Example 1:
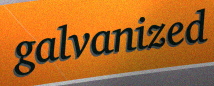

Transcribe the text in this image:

galvanized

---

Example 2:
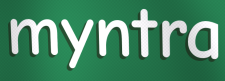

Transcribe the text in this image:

myntra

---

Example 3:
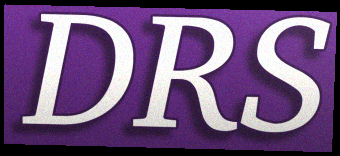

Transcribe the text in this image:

DRS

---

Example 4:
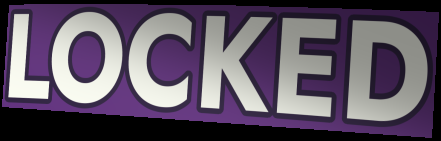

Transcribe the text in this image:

LOCKED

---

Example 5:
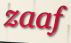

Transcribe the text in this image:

zaaf